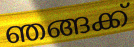
ഞങ്ങക്ക്